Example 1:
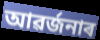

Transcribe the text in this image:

আৱৰ্জনাৰ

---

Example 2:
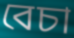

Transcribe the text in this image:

বেচা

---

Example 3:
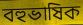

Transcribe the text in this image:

বহুভাষিক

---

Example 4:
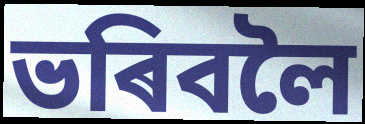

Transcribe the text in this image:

ভৰিবলৈ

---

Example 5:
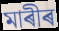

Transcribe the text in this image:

মাৰীৰ